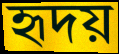
হৃদয়